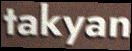
takyan